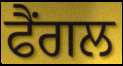
ਫੈਂਗਲ